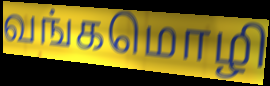
வங்கமொழி